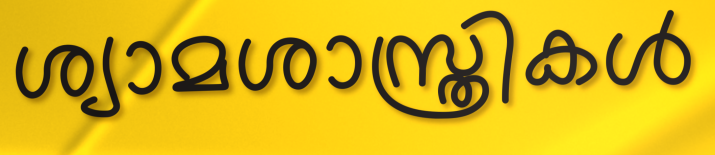
ശ്യാമശാസ്ത്രികൾ